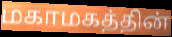
மகாமகத்தின்